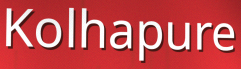
Kolhapure